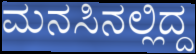
ಮನಸಿನಲ್ಲಿದ್ದ